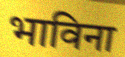
भाविना